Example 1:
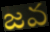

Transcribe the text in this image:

జవ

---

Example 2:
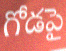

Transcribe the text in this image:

గోడపై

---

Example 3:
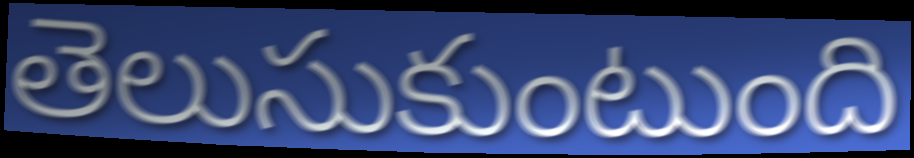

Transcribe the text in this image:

తెలుసుకుంటుంది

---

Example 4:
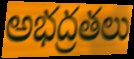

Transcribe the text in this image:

అభద్రతలు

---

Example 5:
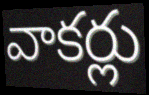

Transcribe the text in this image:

వాకర్లు